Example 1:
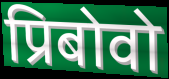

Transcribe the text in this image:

प्रिबोवो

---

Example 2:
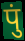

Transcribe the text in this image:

पुं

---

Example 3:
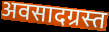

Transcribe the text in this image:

अवसादग्रस्त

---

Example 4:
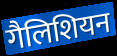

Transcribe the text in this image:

गैलिशियन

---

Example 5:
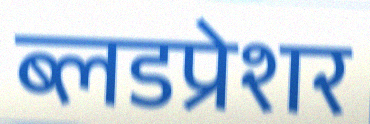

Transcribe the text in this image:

ब्लडप्रेशर